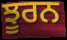
ਝੂਰਨ